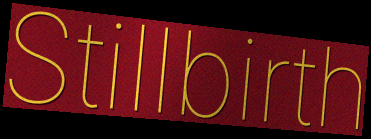
Stillbirth